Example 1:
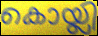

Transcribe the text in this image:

കൊയ്ലി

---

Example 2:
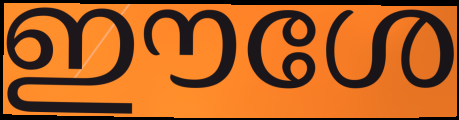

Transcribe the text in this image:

ഈശേ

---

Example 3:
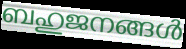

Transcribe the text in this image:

ബഹുജനങ്ങൾ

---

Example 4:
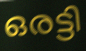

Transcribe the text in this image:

ഒരട്ടി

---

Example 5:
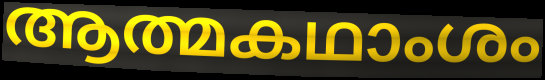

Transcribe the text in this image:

ആത്മകഥാംശം